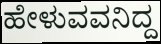
ಹೇಳುವವನಿದ್ದ